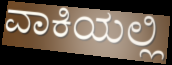
ವಾಕಿಯಲ್ಲಿ